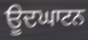
ਊਦਘਾਟਨ